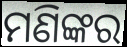
ମଣିଙ୍କର